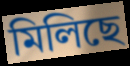
মিলিছে